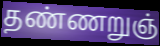
தண்ணறுஞ்